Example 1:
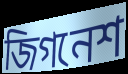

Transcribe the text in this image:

জিগনেশ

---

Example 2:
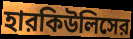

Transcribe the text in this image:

হারকিউলিসের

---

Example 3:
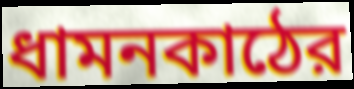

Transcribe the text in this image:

ধামনকাঠের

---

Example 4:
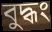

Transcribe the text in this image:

বুদ্ধং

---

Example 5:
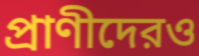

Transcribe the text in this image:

প্রাণীদেরও